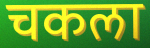
चकला